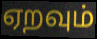
ஏறவும்